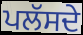
ਪਲੱਸਦੇ